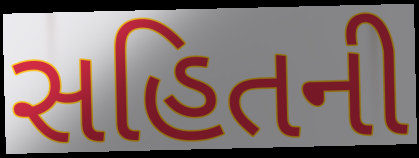
સહિતની